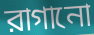
রাগানো